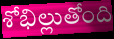
శోభిల్లుతోంది